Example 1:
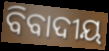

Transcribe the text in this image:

ବିବାଦୀୟ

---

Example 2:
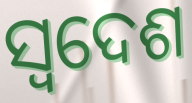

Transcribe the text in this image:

ସ୍ୱଦେଶ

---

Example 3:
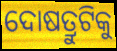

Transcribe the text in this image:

ଦୋଷତ୍ରୁଟିକୁ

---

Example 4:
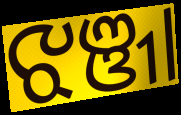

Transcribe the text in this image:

ଝଞ୍ଜା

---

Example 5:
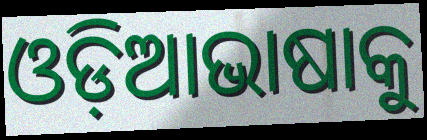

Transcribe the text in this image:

ଓଡ଼ିଆଭାଷାକୁ